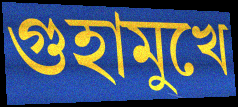
গুহামুখে